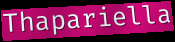
Thapariella